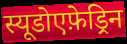
स्यूडोएफ़ेड्रिन